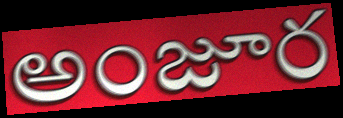
అంజూర